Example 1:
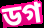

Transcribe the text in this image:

ডগ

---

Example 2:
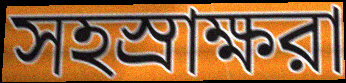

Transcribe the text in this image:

সহস্রাক্ষরা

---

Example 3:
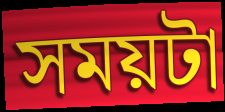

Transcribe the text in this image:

সময়টা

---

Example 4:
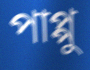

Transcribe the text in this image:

পাপ্পু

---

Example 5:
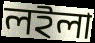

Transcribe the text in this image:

লইলা